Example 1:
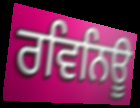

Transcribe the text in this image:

ਰਵਿਨਿਊ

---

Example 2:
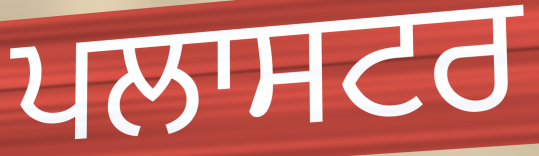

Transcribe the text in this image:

ਪਲਾਸਟਰ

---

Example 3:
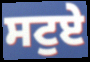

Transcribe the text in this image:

ਸਟੁਏ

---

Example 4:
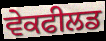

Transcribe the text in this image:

ਵੇਕਫੀਲਡ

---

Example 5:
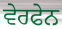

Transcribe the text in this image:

ਵੇਰਫੇਨ